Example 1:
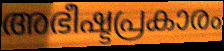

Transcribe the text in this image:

അഭീഷ്ടപ്രകാരം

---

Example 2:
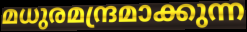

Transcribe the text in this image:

മധുരമന്ദ്രമാക്കുന്ന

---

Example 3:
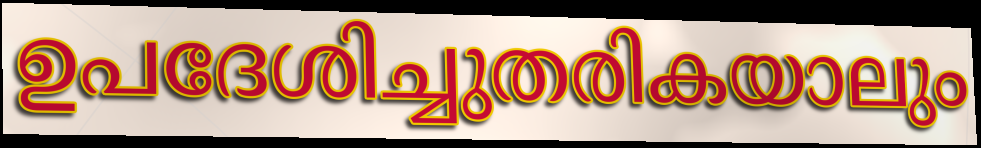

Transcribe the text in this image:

ഉപദേശിച്ചുതരികയാലും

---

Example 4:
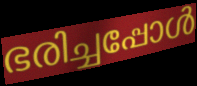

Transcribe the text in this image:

ഭരിച്ചപ്പോൾ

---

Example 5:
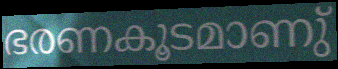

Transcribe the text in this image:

ഭരണകൂടമാണു്